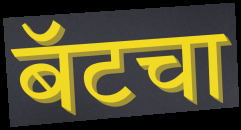
बॅटचा